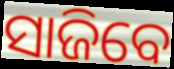
ସାଜିବେ